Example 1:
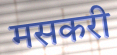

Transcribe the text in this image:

मसकरी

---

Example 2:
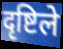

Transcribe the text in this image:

दृष्टिले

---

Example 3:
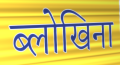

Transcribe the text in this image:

ब्लोखिना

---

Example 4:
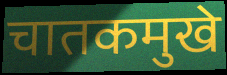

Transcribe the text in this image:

चातकमुखे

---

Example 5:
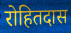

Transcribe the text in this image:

रोहितदास